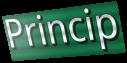
Princip